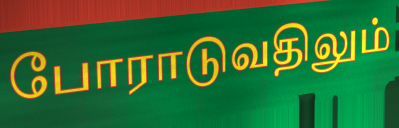
போராடுவதிலும்